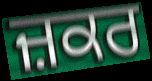
ਜ਼ਕਰ